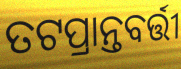
ତଟପ୍ରାନ୍ତବର୍ତ୍ତୀ